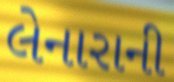
લેનારાની